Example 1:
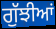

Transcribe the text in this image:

ਗੁੱਝੀਆਂ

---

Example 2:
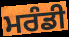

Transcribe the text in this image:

ਮਰੰਡੀ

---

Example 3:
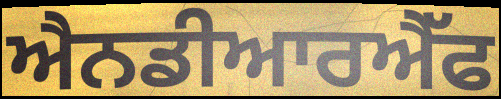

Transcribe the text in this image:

ਐਨਡੀਆਰਐੱਫ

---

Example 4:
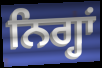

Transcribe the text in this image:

ਨਿਗ੍ਹਾਂ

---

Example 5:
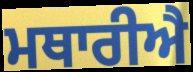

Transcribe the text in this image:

ਮਥਾਰੀਐ